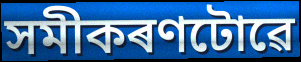
সমীকৰণটোৱে